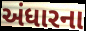
અંધારના